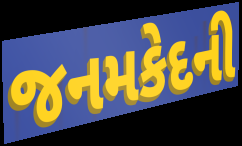
જનમકેદની